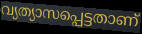
വ്യത്യാസപ്പെട്ടതാണ്